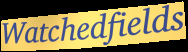
Watchedfields